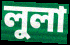
লুলা